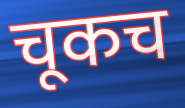
चूकच